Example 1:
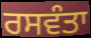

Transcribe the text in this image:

ਰਸਵੰਤਾ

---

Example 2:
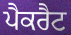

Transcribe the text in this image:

ਪੈਕਰੈਟ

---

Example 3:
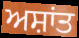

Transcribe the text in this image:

ਅਸ਼ਾਂਤ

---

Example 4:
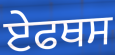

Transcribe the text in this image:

ਏਫਥਸ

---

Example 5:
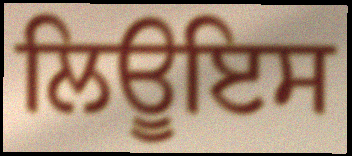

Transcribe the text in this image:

ਲਿਊਇਸ